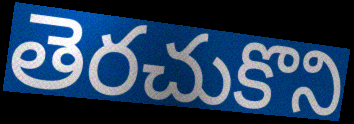
తెరచుకొని